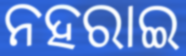
ନହରାଇ